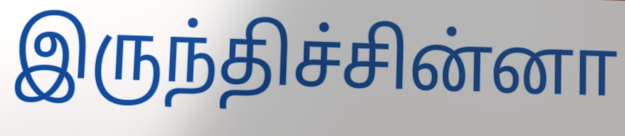
இருந்திச்சின்னா